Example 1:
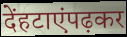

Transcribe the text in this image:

देंहटाएंपढ़कर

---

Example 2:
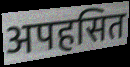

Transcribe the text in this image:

अपहसित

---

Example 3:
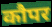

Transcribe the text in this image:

कौपर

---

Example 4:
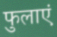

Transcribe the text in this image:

फुलाएं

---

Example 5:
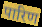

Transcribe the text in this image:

पारिण